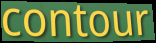
contour